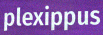
plexippus